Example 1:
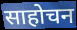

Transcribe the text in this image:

साहोचन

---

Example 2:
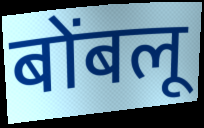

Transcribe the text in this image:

बोंबलू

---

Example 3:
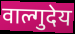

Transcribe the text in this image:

वाल्गुदेय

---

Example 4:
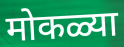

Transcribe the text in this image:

मोकळ्या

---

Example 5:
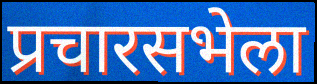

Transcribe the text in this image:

प्रचारसभेला